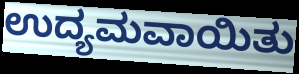
ಉದ್ಯಮವಾಯಿತು